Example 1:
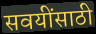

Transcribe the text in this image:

सवयींसाठी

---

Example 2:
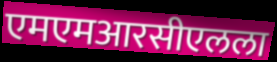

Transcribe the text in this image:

एमएमआरसीएलला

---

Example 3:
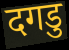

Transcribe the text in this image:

दगडु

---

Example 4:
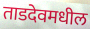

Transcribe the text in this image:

ताडदेवमधील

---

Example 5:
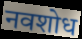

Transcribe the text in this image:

नवशोध